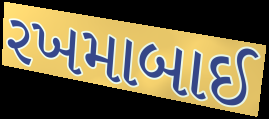
રખમાબાઈ